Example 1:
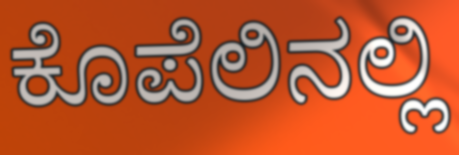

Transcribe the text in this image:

ಕೊಪೆಲಿನಲ್ಲಿ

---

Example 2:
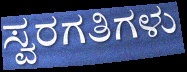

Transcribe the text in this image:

ಸ್ವರಗತಿಗಳು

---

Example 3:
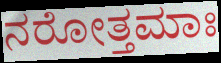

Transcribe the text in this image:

ನರೋತ್ತಮಾಃ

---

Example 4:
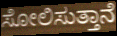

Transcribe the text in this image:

ಸೋಲಿಸುತ್ತಾನೆ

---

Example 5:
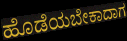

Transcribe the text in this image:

ಹೊಡೆಯಬೇಕಾದಾಗ